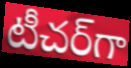
టీచర్‌గా